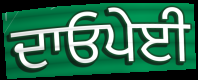
ਦਾਓਪੇਈ